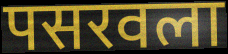
पसरवला